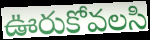
ఊరుకోవలసి